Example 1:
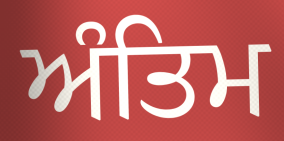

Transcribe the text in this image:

ਅੰਤਿਮ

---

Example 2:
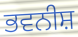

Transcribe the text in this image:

ਭਵਨੀਸ਼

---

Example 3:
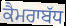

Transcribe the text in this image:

ਕੈਮਰਾਬੱਧ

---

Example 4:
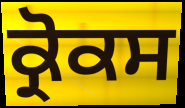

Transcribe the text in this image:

ਕ੍ਰੋਕਸ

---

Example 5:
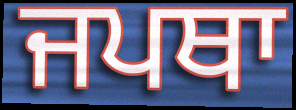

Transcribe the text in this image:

ਜਪਥਾ